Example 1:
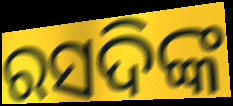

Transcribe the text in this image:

ରସଦିଙ୍କ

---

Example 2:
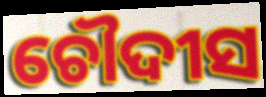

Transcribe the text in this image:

ଚୌଦୀସ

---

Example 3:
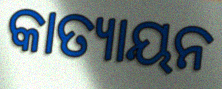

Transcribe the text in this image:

କାତ୍ୟାୟନ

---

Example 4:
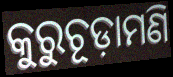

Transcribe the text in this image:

କୁରୁଚୂଡ଼ାମଣି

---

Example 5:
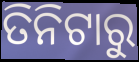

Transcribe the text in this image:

ତିନିଟାରୁ